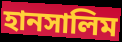
হানসালিম